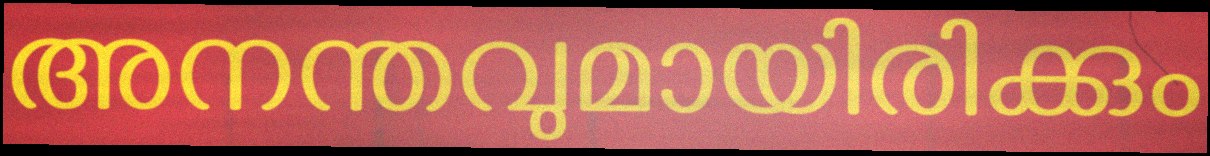
അനന്തവുമായിരിക്കും